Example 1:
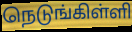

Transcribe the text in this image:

நெடுங்கிள்ளி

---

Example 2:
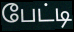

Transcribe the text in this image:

பேட்டி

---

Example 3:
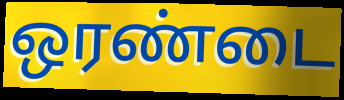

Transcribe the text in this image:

ஒரண்டை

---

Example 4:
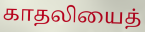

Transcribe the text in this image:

காதலியைத்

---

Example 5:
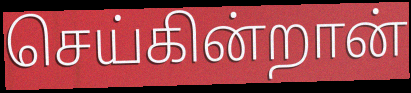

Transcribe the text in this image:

செய்கின்றான்